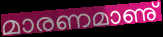
മാരണമാണു്